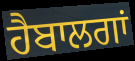
ਹੈਬਾਲਗਾਂ